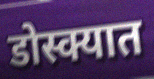
डोस्क्यात